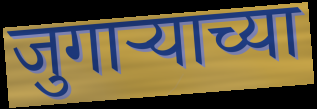
जुगाऱ्याच्या